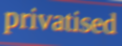
privatised